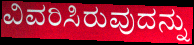
ವಿವರಿಸಿರುವುದನ್ನು